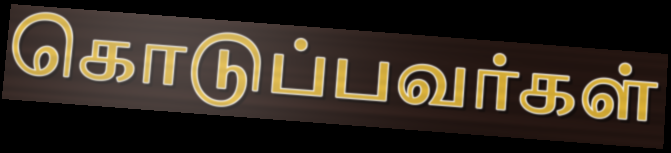
கொடுப்பவர்கள்